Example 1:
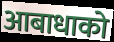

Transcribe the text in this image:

आबाधाको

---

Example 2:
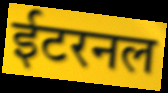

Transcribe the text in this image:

ईटरनल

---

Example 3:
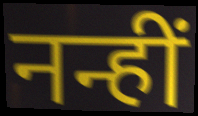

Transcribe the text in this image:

नन्हीं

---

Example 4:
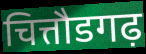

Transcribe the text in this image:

चित्तौडगढ़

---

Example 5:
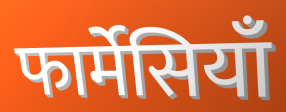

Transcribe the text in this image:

फार्मेसियाँ